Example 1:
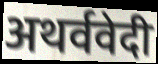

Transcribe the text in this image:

अथर्ववेदी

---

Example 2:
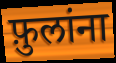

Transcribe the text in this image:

फ़ुलांना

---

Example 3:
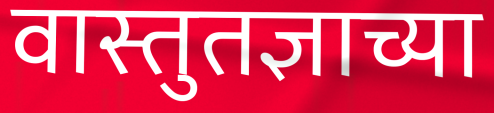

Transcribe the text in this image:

वास्तुतज्ञाच्या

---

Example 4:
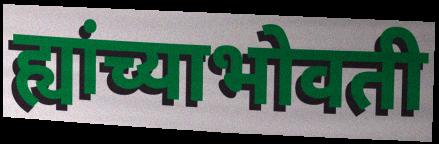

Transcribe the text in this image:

ह्यांच्याभोवती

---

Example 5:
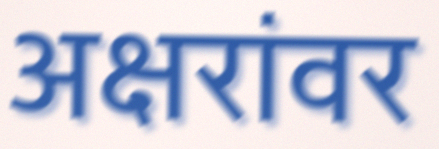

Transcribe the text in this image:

अक्षरांवर